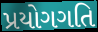
પ્રયોગગતિ